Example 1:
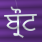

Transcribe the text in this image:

ਬ੍ਰੌਟ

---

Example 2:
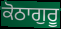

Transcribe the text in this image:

ਕੋਠਾਗੁਰੂ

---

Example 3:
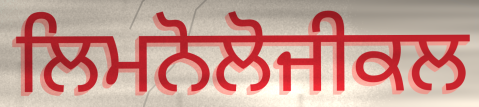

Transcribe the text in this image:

ਲਿਮਨੋਲੋਜੀਕਲ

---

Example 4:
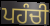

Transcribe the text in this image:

ਪਹੰਚੀ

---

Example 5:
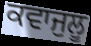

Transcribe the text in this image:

ਕਵਾਜੁਲੂ